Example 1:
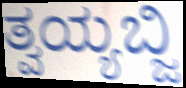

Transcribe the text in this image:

ತ್ವಯ್ಯಬ್ಜಿ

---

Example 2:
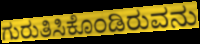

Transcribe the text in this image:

ಗುರುತಿಸಿಕೊಂಡಿರುವನು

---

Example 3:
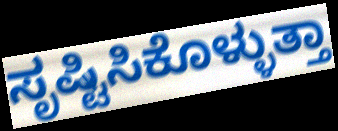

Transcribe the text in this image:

ಸೃಷ್ಟಿಸಿಕೊಳ್ಳುತ್ತಾ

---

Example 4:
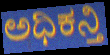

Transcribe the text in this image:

ಅಧಿಕನ್ತಿ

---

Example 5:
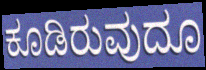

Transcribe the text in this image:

ಕೂಡಿರುವುದೂ